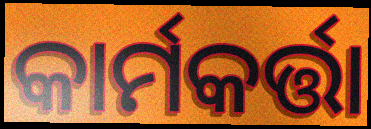
କାର୍ମକର୍ତ୍ତା